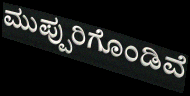
ಮುಪ್ಪುರಿಗೊಂಡಿವೆ